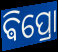
ଵିପ୍ରୋ